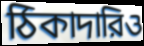
ঠিকাদারিও